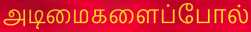
அடிமைகளைப்போல்